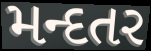
મન્દતર